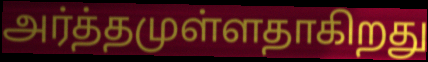
அர்த்தமுள்ளதாகிறது